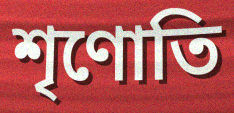
শৃণোতি